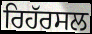
ਰਿਹੱਰਸਲ